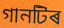
গানটিৰ